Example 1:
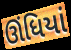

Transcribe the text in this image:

ઊંધિયાં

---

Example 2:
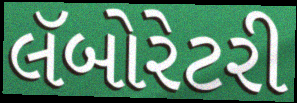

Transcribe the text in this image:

લૅબોરેટરી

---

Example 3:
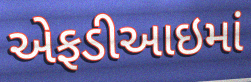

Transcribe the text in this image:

એફડીઆઇમાં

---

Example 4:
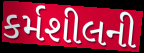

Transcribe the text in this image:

કર્મશીલની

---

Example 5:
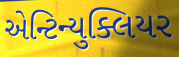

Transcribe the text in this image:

એન્ટિન્યુક્લિયર